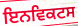
ਇਨਵਿਕਟਸ